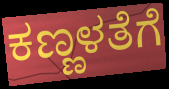
ಕಣ್ಣಳತೆಗೆ